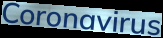
Coronavirus